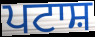
ਪਟਾਸ਼